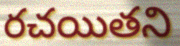
రచయితని